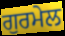
ਗੁਰਮੇਲ